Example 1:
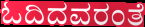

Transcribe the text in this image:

ಓದಿದವರಂತೆ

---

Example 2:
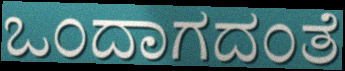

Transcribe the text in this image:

ಒಂದಾಗದಂತೆ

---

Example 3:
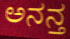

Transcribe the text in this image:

ಅನನ್ತ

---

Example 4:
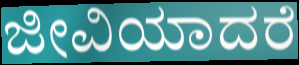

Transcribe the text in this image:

ಜೀವಿಯಾದರೆ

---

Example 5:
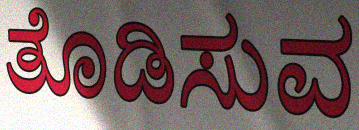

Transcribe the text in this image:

ತೊಡಿಸುವ